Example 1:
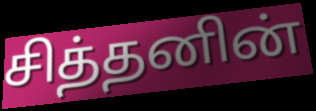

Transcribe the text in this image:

சித்தனின்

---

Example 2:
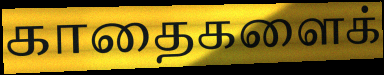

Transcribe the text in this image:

காதைகளைக்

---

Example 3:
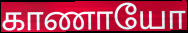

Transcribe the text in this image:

காணாயோ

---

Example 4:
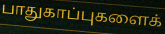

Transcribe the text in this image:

பாதுகாப்புகளைக்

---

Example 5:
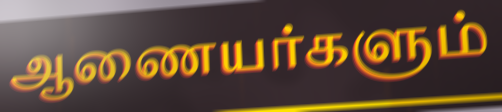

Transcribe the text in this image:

ஆணையர்களும்